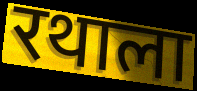
रथाला